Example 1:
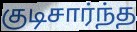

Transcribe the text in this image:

குடிசார்ந்த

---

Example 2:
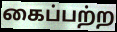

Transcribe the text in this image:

கைப்பற்ற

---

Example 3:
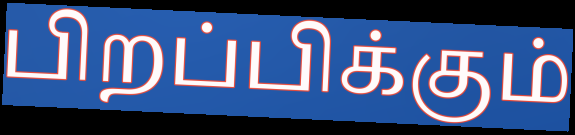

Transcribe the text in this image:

பிறப்பிக்கும்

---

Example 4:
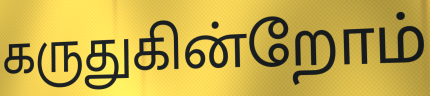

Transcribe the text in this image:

கருதுகின்றோம்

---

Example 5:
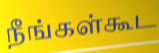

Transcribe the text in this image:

நீங்கள்கூட